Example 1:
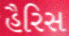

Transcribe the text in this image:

હૈરિસ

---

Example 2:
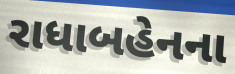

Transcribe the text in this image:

રાધાબહેનના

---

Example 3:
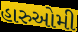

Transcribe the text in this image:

હારુઓમી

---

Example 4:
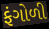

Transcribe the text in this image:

ફંગોળી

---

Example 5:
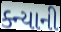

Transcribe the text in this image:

ક્ન્યાની